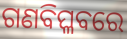
ଗଣବିପ୍ଳବରେ